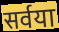
सर्वया